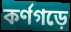
কর্ণগড়ে